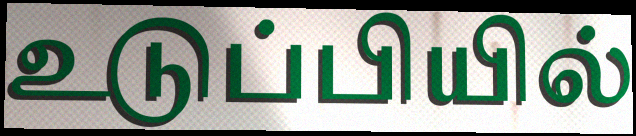
உடுப்பியில்